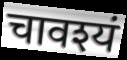
चावश्यं